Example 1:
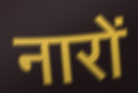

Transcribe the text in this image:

नारों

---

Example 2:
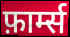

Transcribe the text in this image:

फ़ार्म्स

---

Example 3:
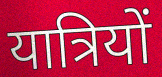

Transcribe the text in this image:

यात्रियों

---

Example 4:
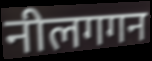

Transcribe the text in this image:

नीलगगन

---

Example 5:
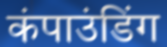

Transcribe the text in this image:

कंपाउंडिंग